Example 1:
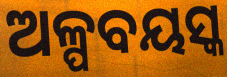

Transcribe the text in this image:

ଅଳ୍ପବୟସ୍କ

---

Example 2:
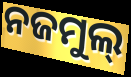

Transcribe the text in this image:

ନଜମୁଲ୍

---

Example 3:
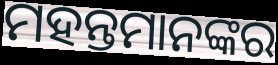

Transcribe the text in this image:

ମହନ୍ତମାନଙ୍କର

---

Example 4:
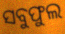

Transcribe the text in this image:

ସବୁଫୁଲ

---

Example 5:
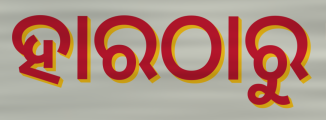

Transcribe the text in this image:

ହାରଠାରୁ